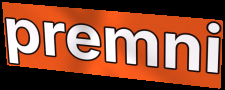
premni